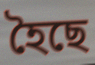
হৈছে